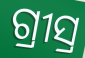
ଗ୍ରୀସ୍ର